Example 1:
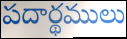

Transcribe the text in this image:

పదార్థములు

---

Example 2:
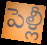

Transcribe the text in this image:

పెళ్లీ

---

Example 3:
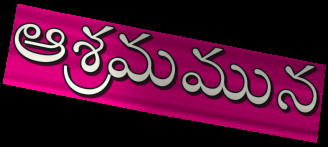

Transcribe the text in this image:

ఆశ్రమమున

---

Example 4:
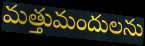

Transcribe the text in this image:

మత్తుమందులను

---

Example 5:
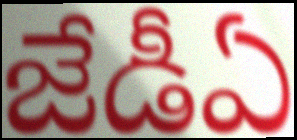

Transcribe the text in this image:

జేడీఏ